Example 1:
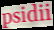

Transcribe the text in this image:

psidii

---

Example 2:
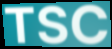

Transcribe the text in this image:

TSC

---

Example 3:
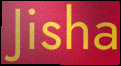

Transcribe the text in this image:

Jisha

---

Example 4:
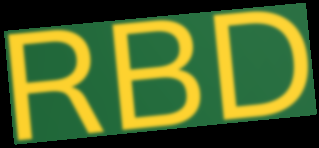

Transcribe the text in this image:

RBD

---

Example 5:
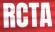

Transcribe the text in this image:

RCTA